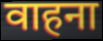
वाहना